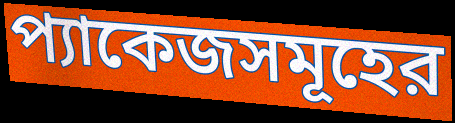
প্যাকেজসমূহের